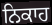
ਨਿਕਾਹ